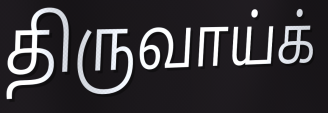
திருவாய்க்